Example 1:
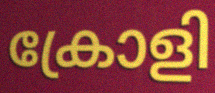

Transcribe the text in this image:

ക്രോളി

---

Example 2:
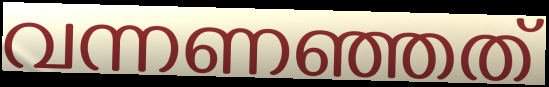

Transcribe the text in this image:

വന്നണഞ്ഞത്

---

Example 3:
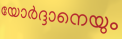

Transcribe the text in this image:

യോർദ്ദാനെയും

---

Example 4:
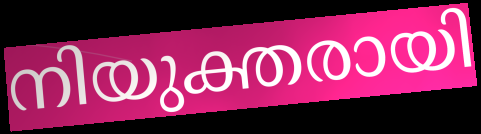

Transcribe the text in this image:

നിയുക്തരായി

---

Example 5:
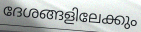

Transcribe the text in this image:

ദേശങ്ങളിലേക്കും